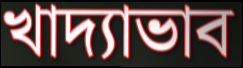
খাদ্যাভাব